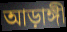
আড়াঙ্গী